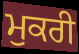
ਮੁਕਰੀ